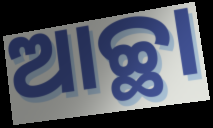
ଆଚ୍ଛା